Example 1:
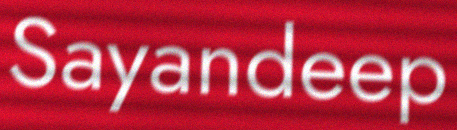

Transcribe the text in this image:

Sayandeep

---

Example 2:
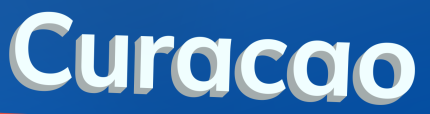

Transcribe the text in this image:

Curacao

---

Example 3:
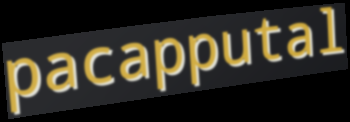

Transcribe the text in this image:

pacapputal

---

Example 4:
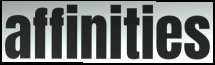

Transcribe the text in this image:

affinities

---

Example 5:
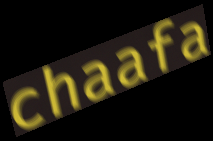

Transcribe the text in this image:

chaafa